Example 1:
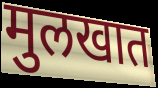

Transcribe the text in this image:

मुलखात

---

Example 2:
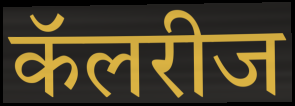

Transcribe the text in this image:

कॅलरीज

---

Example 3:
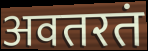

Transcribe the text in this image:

अवतरतं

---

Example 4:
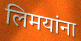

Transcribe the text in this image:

लिमयांना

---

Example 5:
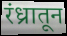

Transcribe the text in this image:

रंध्रातून